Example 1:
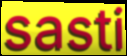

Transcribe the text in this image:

sasti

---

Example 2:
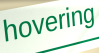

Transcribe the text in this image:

hovering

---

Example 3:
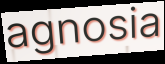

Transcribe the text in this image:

agnosia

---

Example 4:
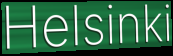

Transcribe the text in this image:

Helsinki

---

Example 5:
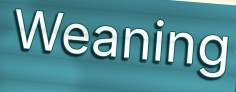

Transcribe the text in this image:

Weaning